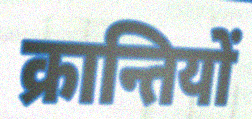
क्रान्तियों